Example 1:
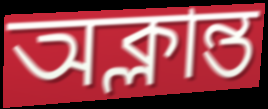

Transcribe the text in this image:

অক্লান্ত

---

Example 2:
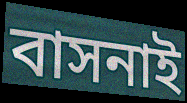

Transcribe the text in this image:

বাসনাই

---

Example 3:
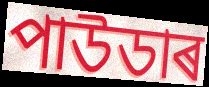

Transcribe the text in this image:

পাউডাৰ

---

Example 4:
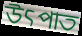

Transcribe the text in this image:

উৎপাত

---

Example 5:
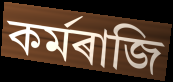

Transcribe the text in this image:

কৰ্মৰাজি